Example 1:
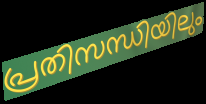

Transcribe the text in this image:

പ്രതിസന്ധിയിലും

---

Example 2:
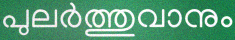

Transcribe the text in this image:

പുലർത്തുവാനും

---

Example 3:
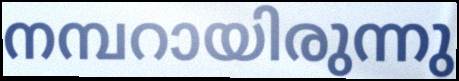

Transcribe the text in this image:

നമ്പറായിരുന്നു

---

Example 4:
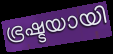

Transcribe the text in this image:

ഭ്രഷ്ടയായി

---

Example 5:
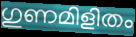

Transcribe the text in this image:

ഗുണമിളിതം